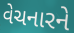
વેચનારને